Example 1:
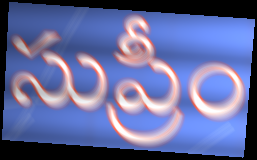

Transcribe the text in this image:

సుప్రీం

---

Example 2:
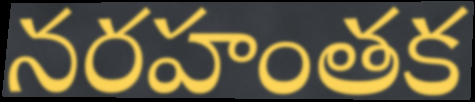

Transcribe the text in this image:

నరహంతక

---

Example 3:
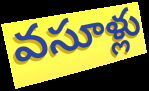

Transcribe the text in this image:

వసూళ్లు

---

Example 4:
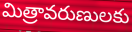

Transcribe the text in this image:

మిత్రావరుణులకు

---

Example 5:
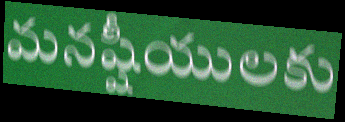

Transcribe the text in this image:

మనష్షీయులకు